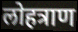
लोहत्राण